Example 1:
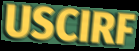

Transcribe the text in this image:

USCIRF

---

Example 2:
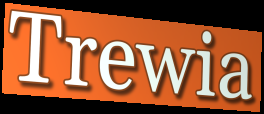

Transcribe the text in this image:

Trewia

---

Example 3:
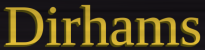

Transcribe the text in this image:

Dirhams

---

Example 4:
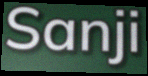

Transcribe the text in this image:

Sanji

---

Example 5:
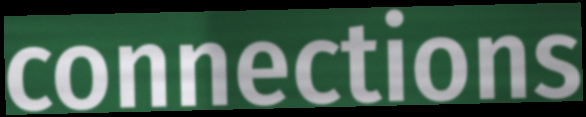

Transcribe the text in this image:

connections